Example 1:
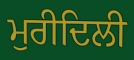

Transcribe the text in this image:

ਮੁਰੀਦਿਲੀ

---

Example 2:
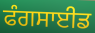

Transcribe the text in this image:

ਫੰਗਸਾਈਡ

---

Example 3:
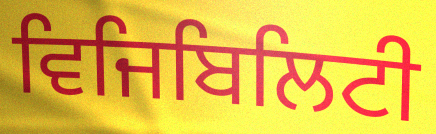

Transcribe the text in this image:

ਵਿਜਿਬਿਲਿਟੀ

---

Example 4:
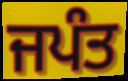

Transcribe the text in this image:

ਜਪੰਤ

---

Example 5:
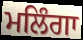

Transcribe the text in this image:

ਮਲਿੰਗਾ